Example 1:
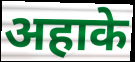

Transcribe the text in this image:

अहाके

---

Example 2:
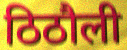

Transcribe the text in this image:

ठिठौली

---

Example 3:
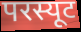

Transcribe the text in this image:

परस्यूट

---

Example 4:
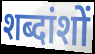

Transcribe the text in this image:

शब्दांशों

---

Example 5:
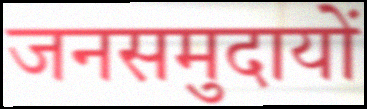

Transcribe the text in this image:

जनसमुदायों